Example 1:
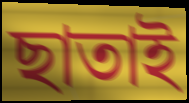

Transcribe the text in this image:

ছাতাই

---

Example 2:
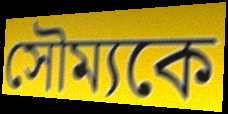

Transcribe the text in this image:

সৌম্যকে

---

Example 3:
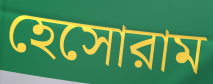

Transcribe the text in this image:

হেসোরাম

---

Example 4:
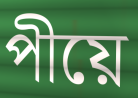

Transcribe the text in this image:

পীয়ে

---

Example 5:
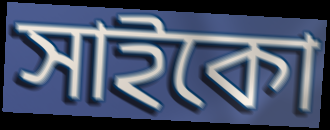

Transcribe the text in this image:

সাইকো